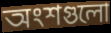
অংশগুলো